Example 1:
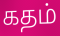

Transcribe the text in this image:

கதம்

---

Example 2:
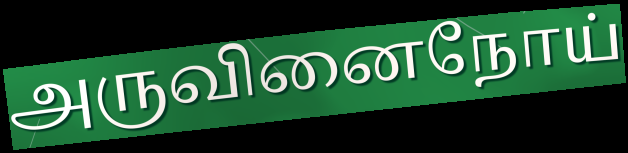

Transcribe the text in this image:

அருவினைநோய்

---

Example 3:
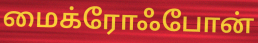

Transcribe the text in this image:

மைக்ரோஃபோன்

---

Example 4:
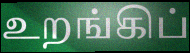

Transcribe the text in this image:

உறங்கிப்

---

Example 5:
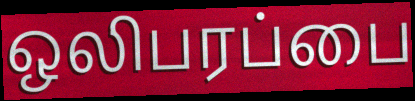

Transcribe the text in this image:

ஒலிபரப்பை